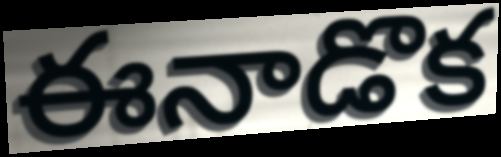
ఈనాడొక